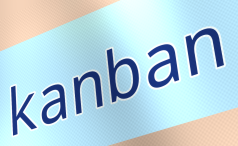
kanban